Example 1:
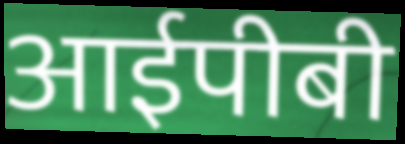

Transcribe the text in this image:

आईपीबी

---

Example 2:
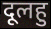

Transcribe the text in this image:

दूलहु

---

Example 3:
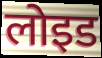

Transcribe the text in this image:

लोइड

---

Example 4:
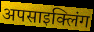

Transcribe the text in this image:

अपसाइक्लिंग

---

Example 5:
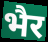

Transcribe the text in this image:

भैर